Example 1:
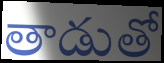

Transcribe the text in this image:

తాడుతో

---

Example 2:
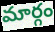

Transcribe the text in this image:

మార్గం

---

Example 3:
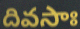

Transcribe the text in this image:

దివసాః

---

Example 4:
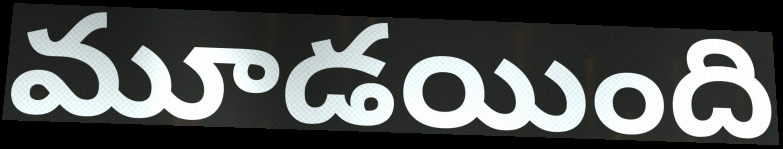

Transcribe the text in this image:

మూడయింది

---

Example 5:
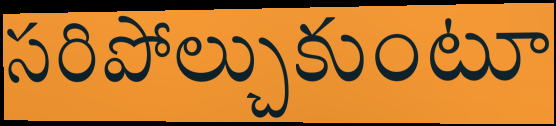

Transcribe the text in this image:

సరిపోల్చుకుంటూ